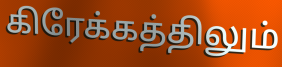
கிரேக்கத்திலும்